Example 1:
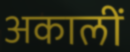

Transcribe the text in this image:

अकालीं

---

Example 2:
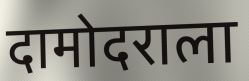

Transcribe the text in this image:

दामोदराला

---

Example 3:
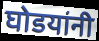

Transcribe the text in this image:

घोडयांनी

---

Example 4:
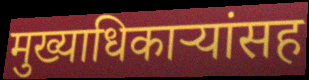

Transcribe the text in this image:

मुख्याधिकाऱ्यांसह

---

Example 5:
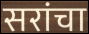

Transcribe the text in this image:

सरांचा